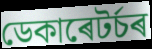
ডেকাৰেটৰ্চৰ